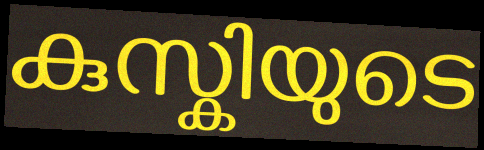
കുസ്കിയുടെ